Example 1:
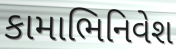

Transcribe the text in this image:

કામાભિનિવેશ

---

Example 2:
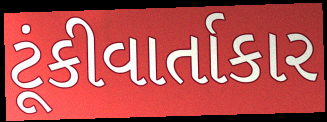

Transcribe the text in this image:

ટૂંકીવાર્તાકાર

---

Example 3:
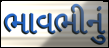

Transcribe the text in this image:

ભાવભીનું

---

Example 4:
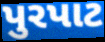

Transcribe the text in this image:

પુરપાટ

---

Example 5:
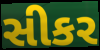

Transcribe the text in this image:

સીકર